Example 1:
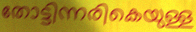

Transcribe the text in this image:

തോട്ടിന്നരികെയുള്ള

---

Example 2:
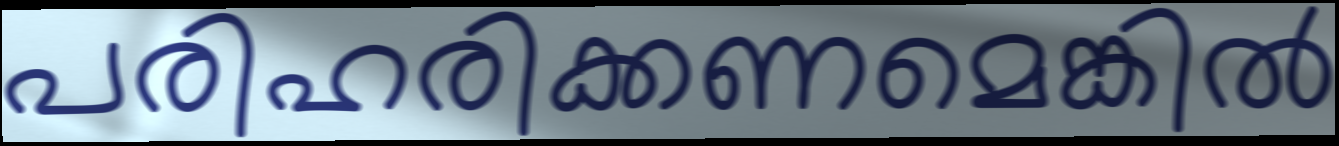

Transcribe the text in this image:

പരിഹരിക്കണമെങ്കിൽ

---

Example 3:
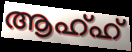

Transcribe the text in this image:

ആഹ്ഹ്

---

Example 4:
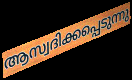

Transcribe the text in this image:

ആസ്വദിക്കപ്പെടുന്നു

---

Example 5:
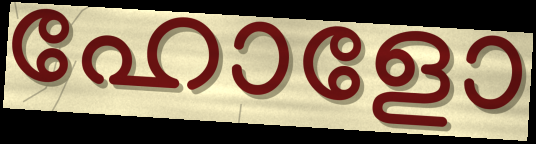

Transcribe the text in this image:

ഹോളോ